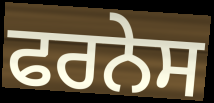
ਫਰਨੇਸ